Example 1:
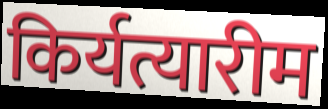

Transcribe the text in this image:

किर्यत्यारीम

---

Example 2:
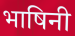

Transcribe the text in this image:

भाषिनी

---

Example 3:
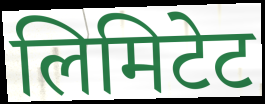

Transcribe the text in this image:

लिमिटेट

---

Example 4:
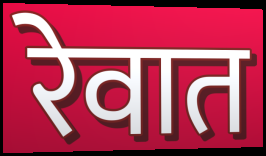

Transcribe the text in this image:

रेवात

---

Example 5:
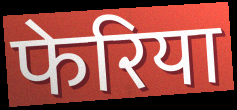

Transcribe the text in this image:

फेरिया